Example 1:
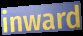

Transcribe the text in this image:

inward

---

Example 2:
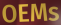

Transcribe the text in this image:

OEMs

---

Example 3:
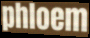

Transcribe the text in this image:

phloem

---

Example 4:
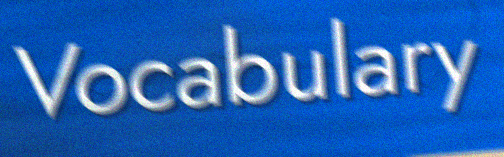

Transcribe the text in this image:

Vocabulary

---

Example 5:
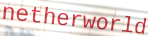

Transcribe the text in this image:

netherworld